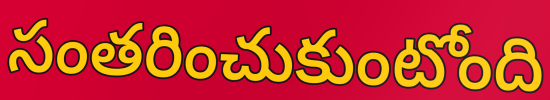
సంతరించుకుంటోంది